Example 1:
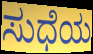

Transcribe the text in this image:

ಸುಧೆಯ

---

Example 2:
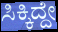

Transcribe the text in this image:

ಸಿಕ್ಕಿದ್ದೇ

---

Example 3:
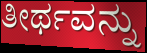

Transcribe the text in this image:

ತೀರ್ಥವನ್ನು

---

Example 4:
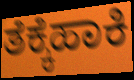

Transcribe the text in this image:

ತೆಕ್ಕೆಹಾಕಿ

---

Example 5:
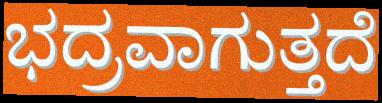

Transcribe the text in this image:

ಭದ್ರವಾಗುತ್ತದೆ